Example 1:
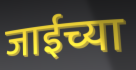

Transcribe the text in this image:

जाईच्या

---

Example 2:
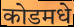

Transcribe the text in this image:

कोडमधे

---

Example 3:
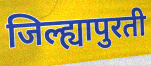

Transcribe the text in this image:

जिल्ह्यापुरती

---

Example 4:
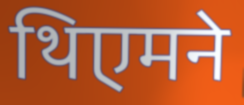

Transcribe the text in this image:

थिएमने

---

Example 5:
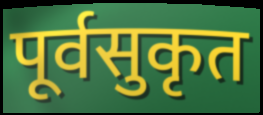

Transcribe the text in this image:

पूर्वसुकृत